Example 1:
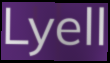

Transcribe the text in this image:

Lyell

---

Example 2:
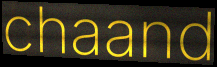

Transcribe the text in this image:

chaand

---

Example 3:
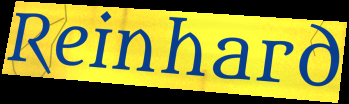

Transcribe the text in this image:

Reinhard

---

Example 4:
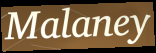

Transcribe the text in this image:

Malaney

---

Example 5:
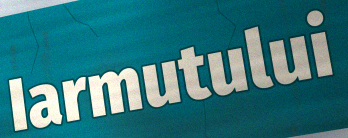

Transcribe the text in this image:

Iarmutului